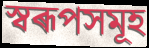
স্বৰূপসমূহ